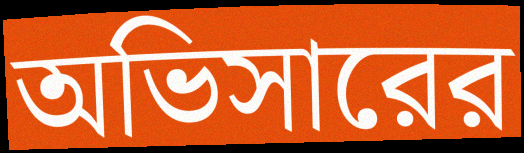
অভিসারের